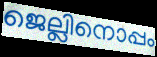
ജെല്ലിനൊപ്പം